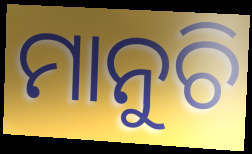
ମାନୁଚି